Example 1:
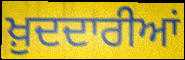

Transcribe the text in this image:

ਖ਼ੁਦਦਾਰੀਆਂ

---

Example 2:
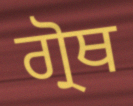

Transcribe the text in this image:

ਗ੍ਰੋਥ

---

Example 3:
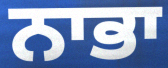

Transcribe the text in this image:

ਨਾਭਾ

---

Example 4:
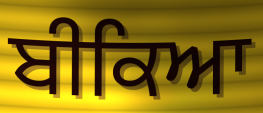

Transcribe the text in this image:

ਬੀਕਿਆ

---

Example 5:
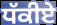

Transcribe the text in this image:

ਧੱਕੀਏ